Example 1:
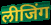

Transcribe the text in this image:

लीजिंग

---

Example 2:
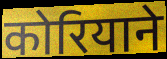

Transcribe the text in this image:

कोरियाने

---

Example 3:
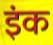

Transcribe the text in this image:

इंक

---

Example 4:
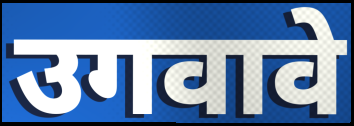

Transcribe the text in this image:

उगवावे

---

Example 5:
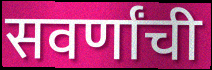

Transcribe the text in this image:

सवर्णांची